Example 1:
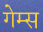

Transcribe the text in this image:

गेम्स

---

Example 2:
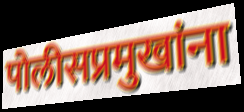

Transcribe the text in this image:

पोलीसप्रमुखांना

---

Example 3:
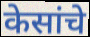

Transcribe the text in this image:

केसांचे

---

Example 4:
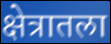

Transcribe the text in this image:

क्षेत्रातला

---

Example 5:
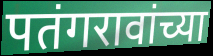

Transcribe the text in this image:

पतंगरावांच्या